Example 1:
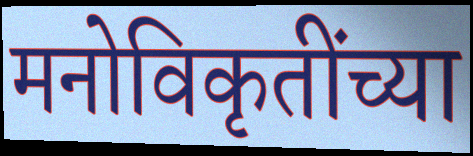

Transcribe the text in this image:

मनोविकृतींच्या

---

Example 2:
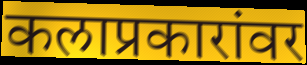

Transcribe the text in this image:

कलाप्रकारांवर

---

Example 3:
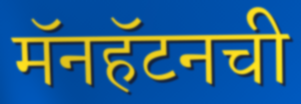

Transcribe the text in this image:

मॅनहॅटनची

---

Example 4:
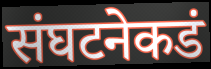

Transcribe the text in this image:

संघटनेकडं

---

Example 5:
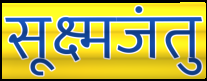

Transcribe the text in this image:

सूक्ष्मजंतु